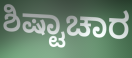
ಶಿಷ್ಟಾಚಾರ